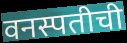
वनस्पतीची